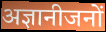
अज्ञानीजनों